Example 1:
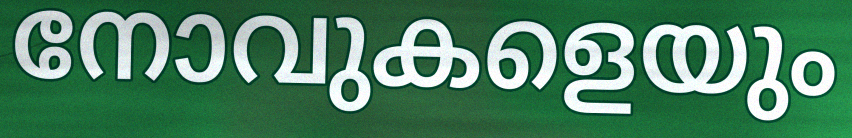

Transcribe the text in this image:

നോവുകളെയും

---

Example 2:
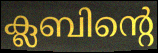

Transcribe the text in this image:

ക്ലബിന്റെ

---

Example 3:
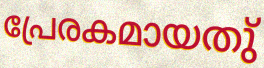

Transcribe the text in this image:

പ്രേരകമായതു്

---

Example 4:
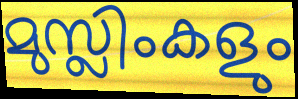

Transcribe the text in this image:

മുസ്ലിംകളും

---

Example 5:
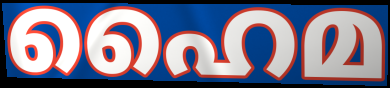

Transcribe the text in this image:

ഹൈമ